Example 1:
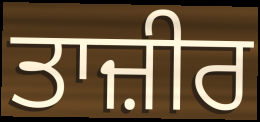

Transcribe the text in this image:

ਤਾਜ਼ੀਰ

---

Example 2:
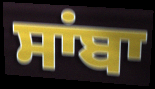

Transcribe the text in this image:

ਸਾਂਬਾ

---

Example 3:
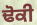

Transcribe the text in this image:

ਢੋਕੀ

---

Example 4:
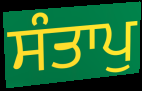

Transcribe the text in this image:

ਸੰਤਾਪੁ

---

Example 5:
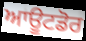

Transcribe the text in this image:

ਆਊਟਡੋਰ